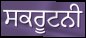
ਸਕਰੂਟਨੀ